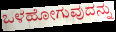
ಒಳಹೋಗುವುದನ್ನು